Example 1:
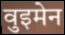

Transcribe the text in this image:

वुइमेन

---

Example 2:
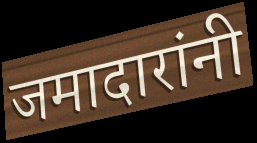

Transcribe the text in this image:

जमादारांनी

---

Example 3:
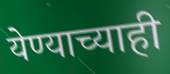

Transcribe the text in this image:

येण्याच्याही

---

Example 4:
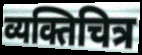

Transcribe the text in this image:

व्यक्तिचित्र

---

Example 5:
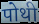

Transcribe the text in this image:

पोथी